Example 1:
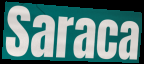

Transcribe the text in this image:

Saraca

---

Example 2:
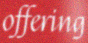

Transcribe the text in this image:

offering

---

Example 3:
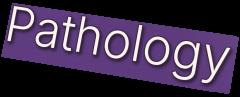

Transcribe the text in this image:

Pathology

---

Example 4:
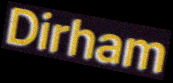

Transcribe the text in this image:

Dirham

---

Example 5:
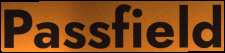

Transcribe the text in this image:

Passfield